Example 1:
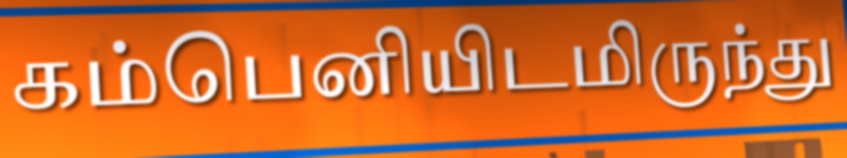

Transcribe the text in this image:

கம்பெனியிடமிருந்து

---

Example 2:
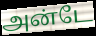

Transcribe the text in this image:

அன்டே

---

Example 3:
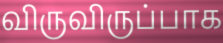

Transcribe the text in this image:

விருவிருப்பாக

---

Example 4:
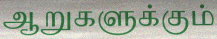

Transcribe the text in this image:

ஆறுகளுக்கும்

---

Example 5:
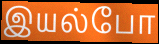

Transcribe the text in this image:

இயல்போ